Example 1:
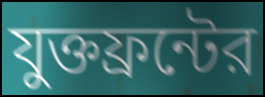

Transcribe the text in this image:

যুক্তফ্রন্টের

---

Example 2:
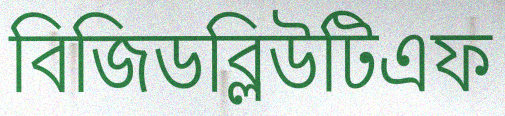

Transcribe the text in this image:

বিজিডব্লিউটিএফ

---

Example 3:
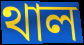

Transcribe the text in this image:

থাল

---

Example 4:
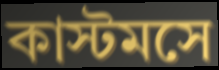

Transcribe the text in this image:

কাস্টমসে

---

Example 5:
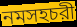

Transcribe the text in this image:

নমসহচরী